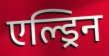
एल्ड्रिन